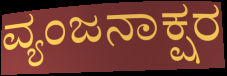
ವ್ಯಂಜನಾಕ್ಷರ